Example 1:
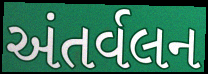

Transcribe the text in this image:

અંતર્વલન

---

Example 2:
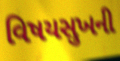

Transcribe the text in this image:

વિષયસુખની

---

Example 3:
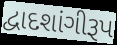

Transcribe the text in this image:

દ્વાદશાંગીરૂપ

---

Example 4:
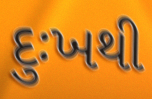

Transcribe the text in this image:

દુઃખથી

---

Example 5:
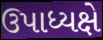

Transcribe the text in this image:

ઉપાધ્યક્ષે